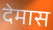
देमास